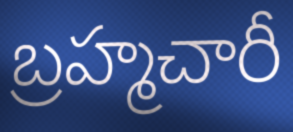
బ్రహ్మచారీ